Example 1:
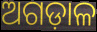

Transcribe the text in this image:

ଅଗଡ଼ାଳ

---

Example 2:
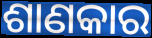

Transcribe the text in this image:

ଶାଣକାର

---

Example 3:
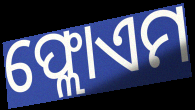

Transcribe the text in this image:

ଫ୍ଲୋଏମ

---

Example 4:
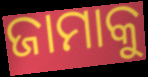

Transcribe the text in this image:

ଜାମାକୁ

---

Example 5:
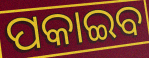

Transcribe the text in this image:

ପକାଇବ